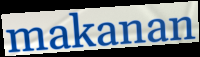
makanan